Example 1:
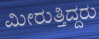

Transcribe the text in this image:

ಮೀರುತ್ತಿದ್ದರು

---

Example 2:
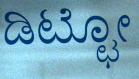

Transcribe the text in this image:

ಡಿಟ್ಟೋ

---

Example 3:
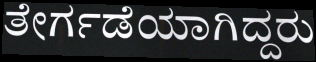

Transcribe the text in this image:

ತೇರ್ಗಡೆಯಾಗಿದ್ದರು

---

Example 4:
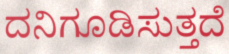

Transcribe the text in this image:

ದನಿಗೂಡಿಸುತ್ತದೆ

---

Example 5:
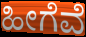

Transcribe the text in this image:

ಹೀಗೆವೆ